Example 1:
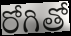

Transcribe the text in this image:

రోగితో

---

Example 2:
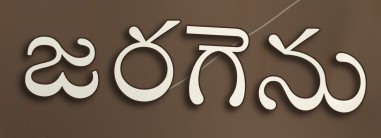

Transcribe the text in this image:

జరగెను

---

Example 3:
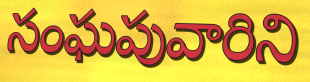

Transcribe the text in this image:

సంఘపువారిని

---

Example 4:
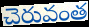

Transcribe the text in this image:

చెరువంత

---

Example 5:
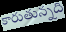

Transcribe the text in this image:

కారుతున్నది